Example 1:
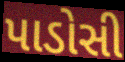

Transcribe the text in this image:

પાડોસી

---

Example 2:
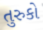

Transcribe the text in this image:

તુરુકો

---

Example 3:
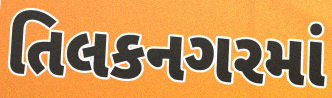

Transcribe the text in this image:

તિલકનગરમાં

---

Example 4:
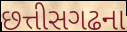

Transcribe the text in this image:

છત્તીસગઢના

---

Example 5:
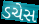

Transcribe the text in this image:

ડચેસ